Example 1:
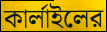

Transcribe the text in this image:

কার্লাইলের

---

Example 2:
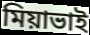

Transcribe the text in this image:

মিয়াভাই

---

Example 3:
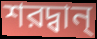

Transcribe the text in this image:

শরদ্বান্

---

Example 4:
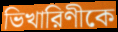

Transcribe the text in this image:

ভিখারিণীকে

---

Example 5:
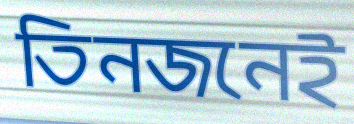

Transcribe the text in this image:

তিনজনেই